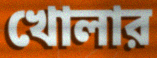
খোলার